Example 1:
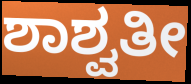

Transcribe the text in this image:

ಶಾಶ್ವತೀ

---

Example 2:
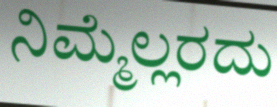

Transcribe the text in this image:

ನಿಮ್ಮೆಲ್ಲರದು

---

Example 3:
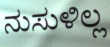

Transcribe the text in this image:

ನುಸುಳಿಲ್ಲ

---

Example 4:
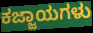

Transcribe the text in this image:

ಕಜ್ಜಾಯಗಳು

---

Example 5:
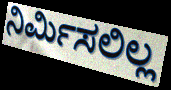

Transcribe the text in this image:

ನಿರ್ಮಿಸಲಿಲ್ಲ